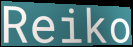
Reiko